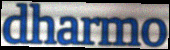
dharmo